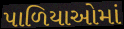
પાળિયાઓમાં